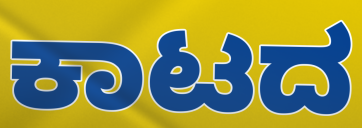
ಕಾಟದ